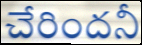
చేరిందనీ